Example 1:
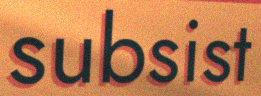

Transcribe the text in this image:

subsist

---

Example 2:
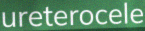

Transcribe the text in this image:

ureterocele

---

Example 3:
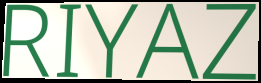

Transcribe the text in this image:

RIYAZ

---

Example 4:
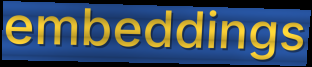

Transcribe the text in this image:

embeddings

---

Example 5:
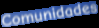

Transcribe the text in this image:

Comunidades